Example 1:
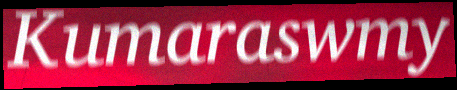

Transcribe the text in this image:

Kumaraswmy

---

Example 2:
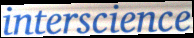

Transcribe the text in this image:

interscience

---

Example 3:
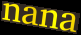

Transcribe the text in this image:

nana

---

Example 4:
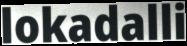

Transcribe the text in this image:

lokadalli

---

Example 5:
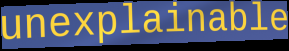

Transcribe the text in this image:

unexplainable